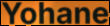
Yohane